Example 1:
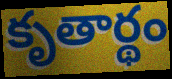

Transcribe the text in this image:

కృతార్థం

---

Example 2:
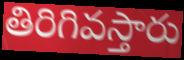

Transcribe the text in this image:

తిరిగివస్తారు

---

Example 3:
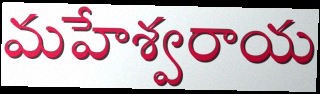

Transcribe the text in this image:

మహేశ్వరాయ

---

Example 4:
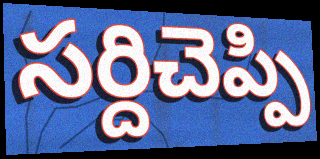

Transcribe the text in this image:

సర్దిచెప్పి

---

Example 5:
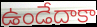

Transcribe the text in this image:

ఉండేదాకా